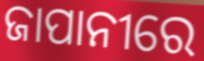
ଜାପାନୀରେ